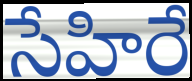
సేహిరే